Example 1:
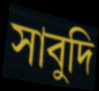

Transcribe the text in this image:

সাবুদি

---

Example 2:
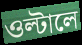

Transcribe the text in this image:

ওল্টালে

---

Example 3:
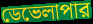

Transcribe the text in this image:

ডেভেলাপার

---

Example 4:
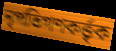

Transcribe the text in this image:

নৃপতিগণকর্ত্তৃক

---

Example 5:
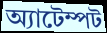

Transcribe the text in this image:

অ্যাটেম্পট